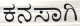
ಕನಸಾಗಿ